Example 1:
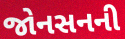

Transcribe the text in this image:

જોનસનની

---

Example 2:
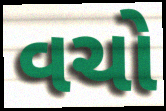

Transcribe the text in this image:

વચો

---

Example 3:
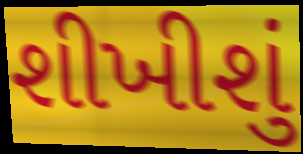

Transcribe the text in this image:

શીખીશું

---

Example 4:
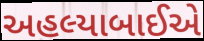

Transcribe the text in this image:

અહલ્યાબાઈએ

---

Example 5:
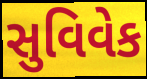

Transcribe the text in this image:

સુવિવેક